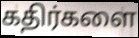
கதிர்களை